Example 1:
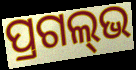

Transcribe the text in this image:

ପ୍ରଗଲ୍‌ଭ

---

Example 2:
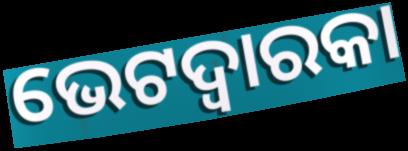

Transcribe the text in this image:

ଭେଟଦ୍ୱାରକା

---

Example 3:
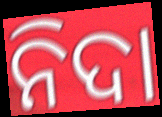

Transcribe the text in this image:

ନିଦା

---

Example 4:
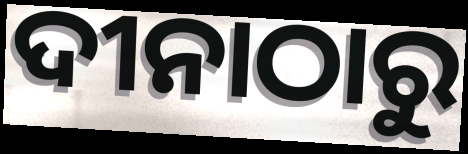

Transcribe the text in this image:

ଦୀନାଠାରୁ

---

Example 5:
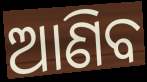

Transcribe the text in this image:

ଆଣିବ